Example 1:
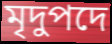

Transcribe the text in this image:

মৃদুপদে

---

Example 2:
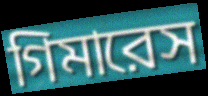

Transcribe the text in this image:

গিমারেস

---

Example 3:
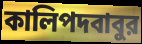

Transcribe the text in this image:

কালিপদবাবুর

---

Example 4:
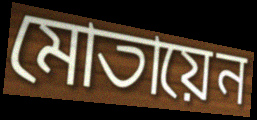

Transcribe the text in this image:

মোতায়েন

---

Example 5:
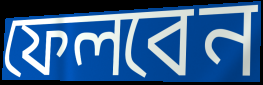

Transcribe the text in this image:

ফেলবেন